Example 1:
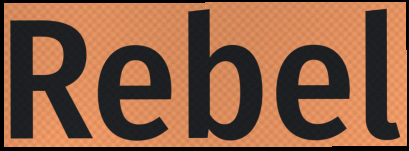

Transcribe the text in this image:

Rebel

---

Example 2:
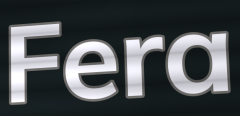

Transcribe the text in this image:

Fera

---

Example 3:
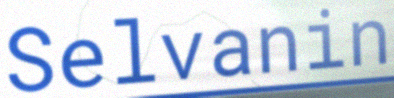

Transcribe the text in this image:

Selvanin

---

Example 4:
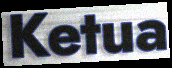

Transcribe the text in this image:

Ketua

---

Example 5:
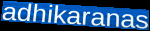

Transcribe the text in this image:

adhikaranas